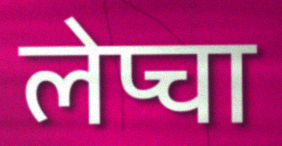
लेप्चा